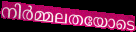
നിർമ്മലതയോടെ